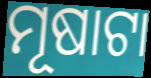
ମୂଷାଟା